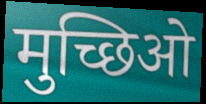
मुच्छिओ